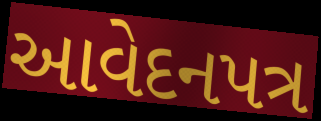
આવેદનપત્ર